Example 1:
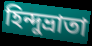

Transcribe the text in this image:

হিন্দুভ্রাতা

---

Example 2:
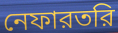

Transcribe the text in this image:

নেফারতরি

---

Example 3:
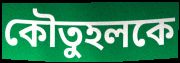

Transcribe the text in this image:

কৌতুহলকে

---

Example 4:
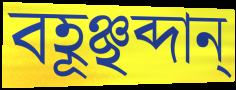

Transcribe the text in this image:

বহূঞ্ছব্দান্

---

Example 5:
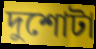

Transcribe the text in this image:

দুশোটা